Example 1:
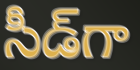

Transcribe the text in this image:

సీడ్‌గా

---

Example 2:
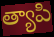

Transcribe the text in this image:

త్యాపి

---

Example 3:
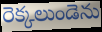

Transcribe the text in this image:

రెక్కలుండెను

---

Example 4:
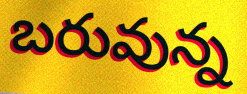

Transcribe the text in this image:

బరువున్న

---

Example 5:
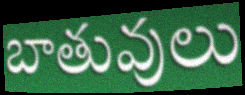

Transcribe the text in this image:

బాతువులు